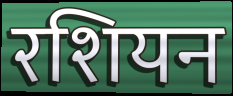
रशियन